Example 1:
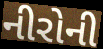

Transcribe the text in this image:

નીરોની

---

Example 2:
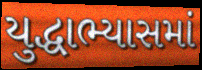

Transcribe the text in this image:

યુદ્ધાભ્યાસમાં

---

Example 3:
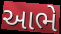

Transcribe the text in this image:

આભે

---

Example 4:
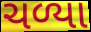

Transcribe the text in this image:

ચળ્યા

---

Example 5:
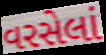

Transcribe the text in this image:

વરસેલાં